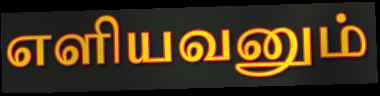
எளியவனும்